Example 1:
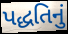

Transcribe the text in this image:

પદ્ધતિનું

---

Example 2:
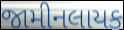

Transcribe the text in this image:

જામીનલાયક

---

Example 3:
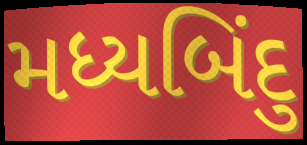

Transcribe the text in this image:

મધ્યબિંદુ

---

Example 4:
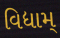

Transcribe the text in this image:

વિદ્યામ્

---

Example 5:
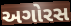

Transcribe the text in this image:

અગોરસ